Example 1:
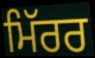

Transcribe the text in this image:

ਮਿੱਰਰ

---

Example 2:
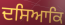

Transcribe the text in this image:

ਦਸਿਆਕਿ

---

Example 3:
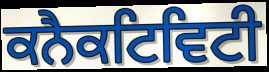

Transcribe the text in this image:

ਕਨੈਕਟਿਵਿਟੀ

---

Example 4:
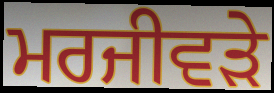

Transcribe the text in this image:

ਮਰਜੀਵੜੇ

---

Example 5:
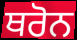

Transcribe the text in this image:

ਥਰੋਨ